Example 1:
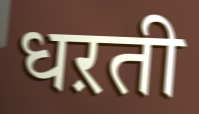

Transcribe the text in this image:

धऱती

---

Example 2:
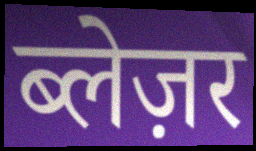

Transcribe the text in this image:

ब्लेज़र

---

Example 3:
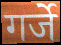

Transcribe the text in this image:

गर्जे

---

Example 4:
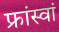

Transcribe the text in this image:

फ्रांस्वां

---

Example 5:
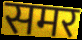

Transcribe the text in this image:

समर